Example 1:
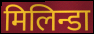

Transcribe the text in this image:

मिलिन्डा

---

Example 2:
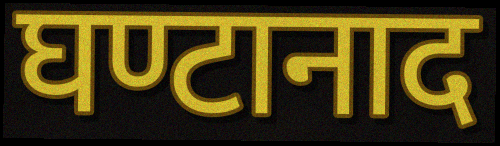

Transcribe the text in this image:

घण्टानाद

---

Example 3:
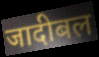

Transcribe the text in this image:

जादीबल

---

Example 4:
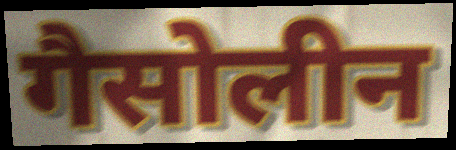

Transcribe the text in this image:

गैसोलीन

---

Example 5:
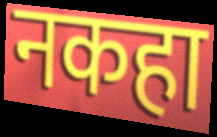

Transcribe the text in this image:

नकहा